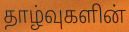
தாழ்வுகளின்